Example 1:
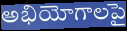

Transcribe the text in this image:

అభియోగాలపై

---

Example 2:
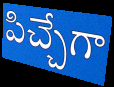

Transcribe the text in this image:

పిచ్చేగా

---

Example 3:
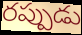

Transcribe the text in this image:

రప్పుడు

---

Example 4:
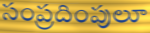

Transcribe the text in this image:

సంప్రదింపులూ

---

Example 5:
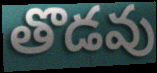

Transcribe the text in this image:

తొడవు